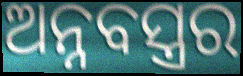
ଅନ୍ନବସ୍ତ୍ରର